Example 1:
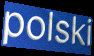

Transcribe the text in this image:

polski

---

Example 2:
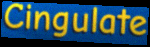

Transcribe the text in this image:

Cingulate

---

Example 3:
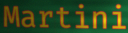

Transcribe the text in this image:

Martini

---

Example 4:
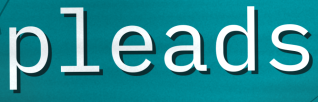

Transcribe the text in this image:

pleads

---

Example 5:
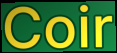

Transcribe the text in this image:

Coir